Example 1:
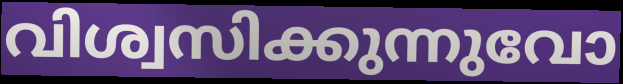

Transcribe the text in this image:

വിശ്വസിക്കുന്നുവോ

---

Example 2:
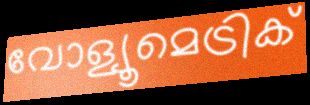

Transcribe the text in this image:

വോള്യൂമെട്രിക്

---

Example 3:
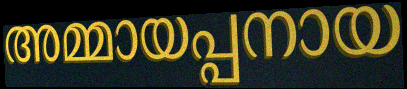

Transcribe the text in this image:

അമ്മായപ്പനായ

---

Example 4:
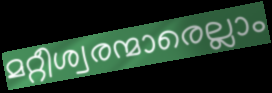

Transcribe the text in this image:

മറ്റീശ്വരന്മാരെല്ലാം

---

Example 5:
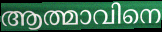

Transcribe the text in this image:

ആത്മാവിനെ